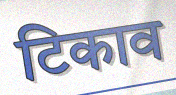
टिकाव